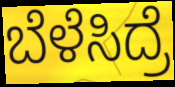
ಬೆಳೆಸಿದ್ರೆ